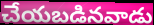
చేయబడినవాడు